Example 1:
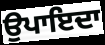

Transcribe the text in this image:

ਉਪਾਇਦਾ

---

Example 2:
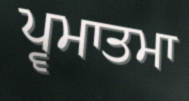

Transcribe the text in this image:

ਪ੍ਵਮਾਤਮਾ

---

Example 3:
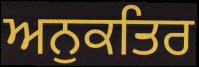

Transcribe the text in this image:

ਅਨੁਕਤਿਰ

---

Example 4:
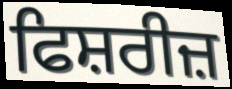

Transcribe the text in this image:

ਫਿਸ਼ਰੀਜ਼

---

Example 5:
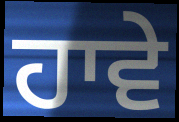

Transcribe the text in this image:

ਹਾਵੇ